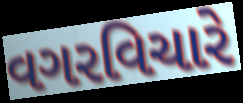
વગરવિચારે